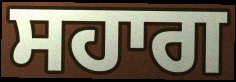
ਸਹਾਗ